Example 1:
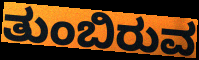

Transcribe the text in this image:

ತುಂಬಿರುವ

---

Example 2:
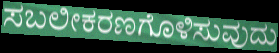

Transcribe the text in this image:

ಸಬಲೀಕರಣಗೊಳಿಸುವುದು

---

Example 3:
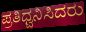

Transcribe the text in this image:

ಪ್ರತಿಧ್ವನಿಸಿದರು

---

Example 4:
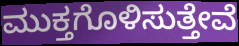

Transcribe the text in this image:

ಮುಕ್ತಗೊಳಿಸುತ್ತೇವೆ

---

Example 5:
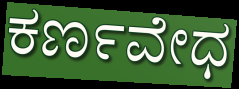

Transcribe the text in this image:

ಕರ್ಣವೇಧ